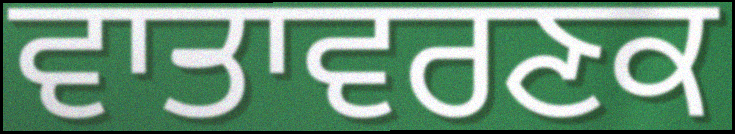
ਵਾਤਾਵਰਣਕ